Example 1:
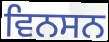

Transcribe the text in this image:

ਵਿਨਸਨ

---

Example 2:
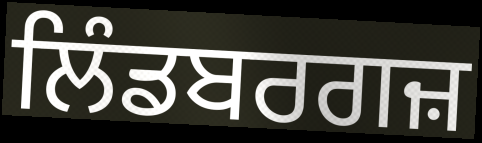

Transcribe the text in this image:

ਲਿੰਡਬਰਗਜ਼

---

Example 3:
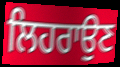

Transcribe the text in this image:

ਲਿਹਰਾਉਣ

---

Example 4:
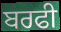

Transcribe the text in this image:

ਬਰਫੀ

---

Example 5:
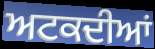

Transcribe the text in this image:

ਅਟਕਦੀਆਂ